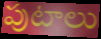
పుటాలు